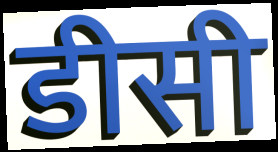
डीसी